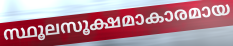
സ്ഥൂലസൂക്ഷമാകാരമായ